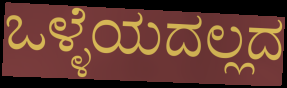
ಒಳ್ಳೆಯದಲ್ಲದ